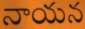
నాయన